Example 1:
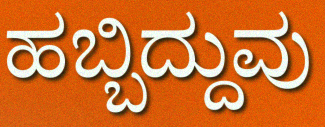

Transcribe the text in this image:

ಹಬ್ಬಿದ್ದುವು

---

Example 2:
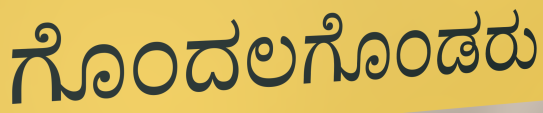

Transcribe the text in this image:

ಗೊಂದಲಗೊಂಡರು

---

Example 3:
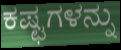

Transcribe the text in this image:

ಕಷ್ಟಗಳನ್ನು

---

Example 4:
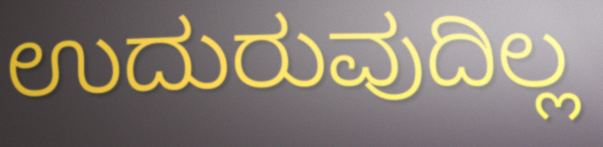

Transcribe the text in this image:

ಉದುರುವುದಿಲ್ಲ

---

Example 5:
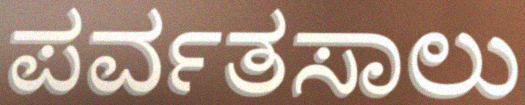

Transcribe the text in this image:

ಪರ್ವತಸಾಲು